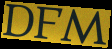
DFM